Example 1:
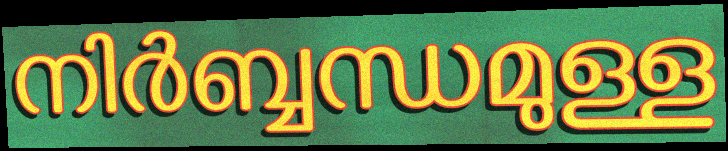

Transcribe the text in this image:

നിർബ്ബന്ധമുള്ള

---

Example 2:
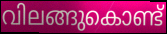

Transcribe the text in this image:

വിലങ്ങുകൊണ്ട്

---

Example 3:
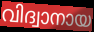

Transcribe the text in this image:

വിദ്വാനായ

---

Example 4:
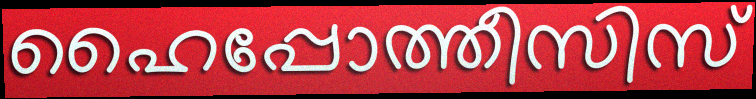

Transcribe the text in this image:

ഹൈപ്പോത്തീസിസ്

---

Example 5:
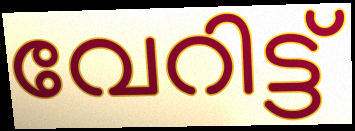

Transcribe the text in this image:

വേറിട്ട്